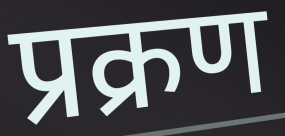
प्रक्रण